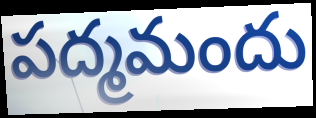
పద్మమందు